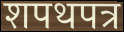
शपथपत्र